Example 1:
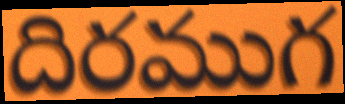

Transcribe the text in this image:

దిరముగ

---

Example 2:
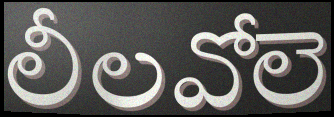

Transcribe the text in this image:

లీలవోలె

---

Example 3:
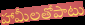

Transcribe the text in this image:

హామీలతోపాటు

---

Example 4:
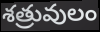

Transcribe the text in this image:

శత్రువులం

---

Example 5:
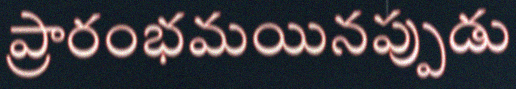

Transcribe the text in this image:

ప్రారంభమయినప్పుడు